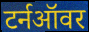
टर्नऑवर